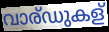
വാര്ഡുകള്